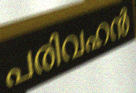
പരിവഹൻ